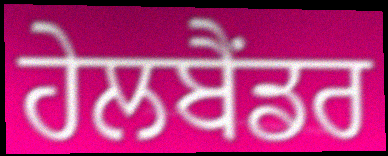
ਹੇਲਬੈਂਡਰ